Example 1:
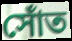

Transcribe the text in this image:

সোঁত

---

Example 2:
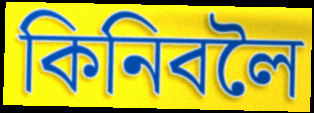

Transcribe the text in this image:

কিনিবলৈ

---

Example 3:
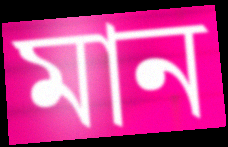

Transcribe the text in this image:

মান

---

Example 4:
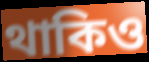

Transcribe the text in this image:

থাকিও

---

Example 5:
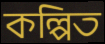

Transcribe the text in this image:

কল্পিত